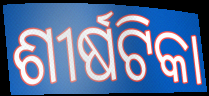
ଶୀର୍ଷଟିକା